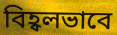
বিহ্বলভাবে